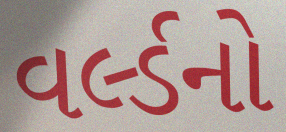
વર્લ્ડનો